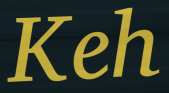
Keh